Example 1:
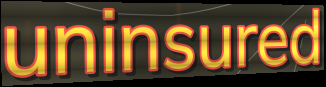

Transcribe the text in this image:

uninsured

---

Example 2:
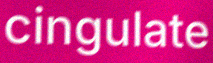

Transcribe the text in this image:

cingulate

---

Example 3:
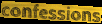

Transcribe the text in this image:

confessions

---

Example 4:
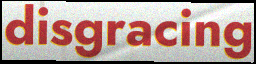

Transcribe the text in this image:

disgracing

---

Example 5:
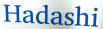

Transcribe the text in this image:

Hadashi